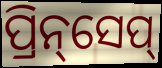
ପ୍ରିନ୍‌ସେପ୍